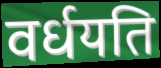
वर्धयति